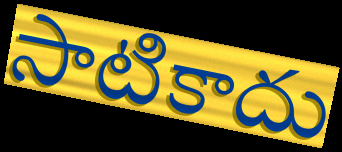
సాటికాదు